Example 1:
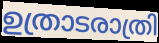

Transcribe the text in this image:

ഉത്രാടരാത്രി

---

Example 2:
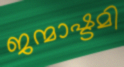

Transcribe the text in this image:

ജന്മാഷ്ടമി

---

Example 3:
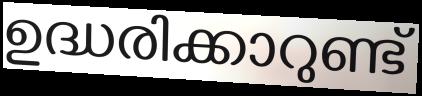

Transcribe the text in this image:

ഉദ്ധരിക്കാറുണ്ട്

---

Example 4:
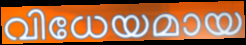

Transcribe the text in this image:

വിധേയമായ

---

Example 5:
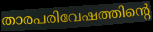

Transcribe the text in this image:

താരപരിവേഷത്തിന്റെ